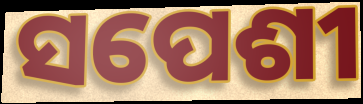
ସପେଶୀ